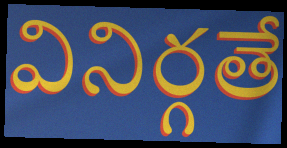
వినిర్గతే